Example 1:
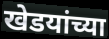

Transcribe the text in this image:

खेडयांच्या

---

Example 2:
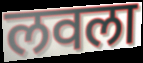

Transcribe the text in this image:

लवला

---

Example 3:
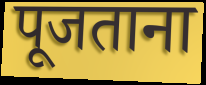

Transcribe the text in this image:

पूजताना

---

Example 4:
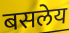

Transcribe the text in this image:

बसलेय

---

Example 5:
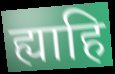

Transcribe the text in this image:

ह्याहि